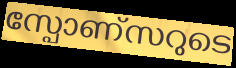
സ്പോണ്സറുടെ